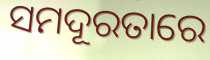
ସମଦୂରତାରେ